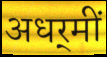
अधर्मीं